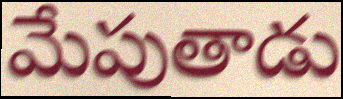
మేపుతాడు